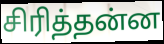
சிரித்தன்ன